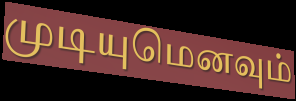
முடியுமெனவும்